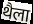
थैला